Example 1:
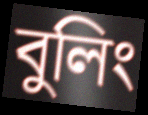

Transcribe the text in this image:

বুলিং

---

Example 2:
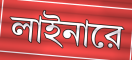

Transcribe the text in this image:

লাইনারে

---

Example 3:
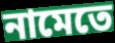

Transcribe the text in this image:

নামেতে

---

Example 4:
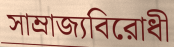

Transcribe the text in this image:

সাম্রাজ্যবিরোধী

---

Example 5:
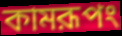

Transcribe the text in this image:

কামরূপং